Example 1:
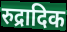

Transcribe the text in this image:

रुद्रादिक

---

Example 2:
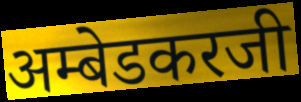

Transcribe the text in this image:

अम्बेडकरजी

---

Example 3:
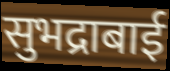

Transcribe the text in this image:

सुभद्राबाई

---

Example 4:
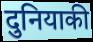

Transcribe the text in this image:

दुनियाकी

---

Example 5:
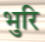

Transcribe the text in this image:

भुरि